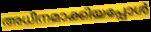
അധീനമാക്കിയപ്പോൾ